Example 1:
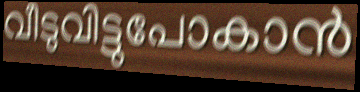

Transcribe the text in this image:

വീടുവിട്ടുപോകാൻ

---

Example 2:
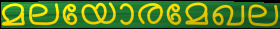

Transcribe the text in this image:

മലയോരമേഖല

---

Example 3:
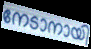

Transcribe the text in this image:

നേടാനായി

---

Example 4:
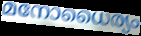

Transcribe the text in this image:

മനോധൈര്യം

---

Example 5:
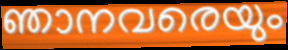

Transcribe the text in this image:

ഞാനവരെയും